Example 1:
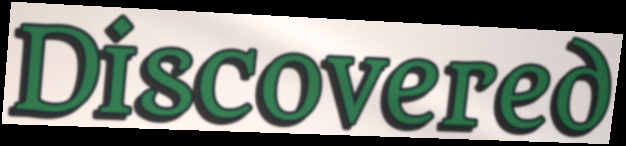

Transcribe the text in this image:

Discovered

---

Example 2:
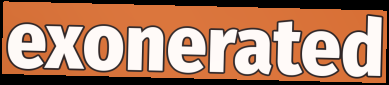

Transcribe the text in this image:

exonerated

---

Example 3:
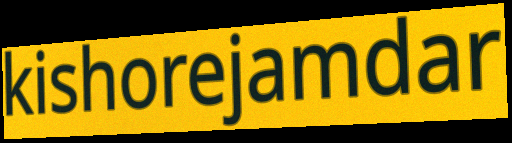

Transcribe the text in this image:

kishorejamdar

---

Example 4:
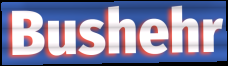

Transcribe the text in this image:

Bushehr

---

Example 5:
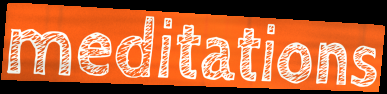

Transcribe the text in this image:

meditations